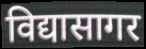
विद्यासागर